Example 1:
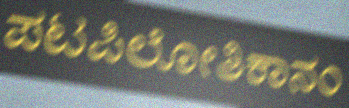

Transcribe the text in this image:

ಪಟಪಿಲೋತಿಕಾನಂ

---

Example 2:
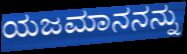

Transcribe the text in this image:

ಯಜಮಾನನನ್ನು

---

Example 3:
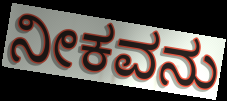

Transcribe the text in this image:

ನೀಕವನು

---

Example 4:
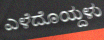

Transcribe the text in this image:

ಎಳೆದೊಯ್ದಳು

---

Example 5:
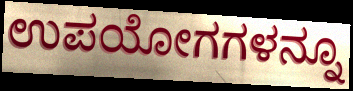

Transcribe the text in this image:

ಉಪಯೋಗಗಳನ್ನೂ